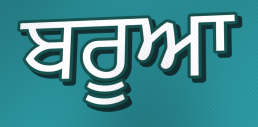
ਬਰੂਆ